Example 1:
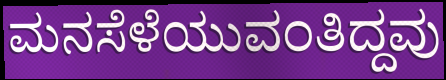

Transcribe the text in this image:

ಮನಸೆಳೆಯುವಂತಿದ್ದವು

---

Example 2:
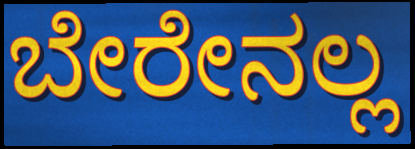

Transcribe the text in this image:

ಬೇರೇನಲ್ಲ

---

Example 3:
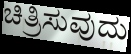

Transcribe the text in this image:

ಚಿತ್ರಿಸುವುದು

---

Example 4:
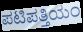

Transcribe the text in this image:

ಪಟಿಪತ್ತಿಯಂ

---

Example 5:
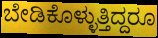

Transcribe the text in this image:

ಬೇಡಿಕೊಳ್ಳುತ್ತಿದ್ದರೂ